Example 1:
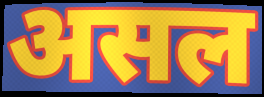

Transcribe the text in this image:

असल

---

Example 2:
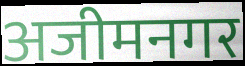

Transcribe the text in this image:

अजीमनगर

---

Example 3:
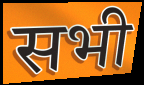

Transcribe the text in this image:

सभी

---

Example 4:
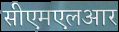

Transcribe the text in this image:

सीएमएलआर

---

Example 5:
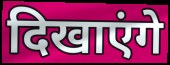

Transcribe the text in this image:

दिखाएंगे